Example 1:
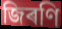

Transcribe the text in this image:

জিৰণি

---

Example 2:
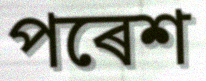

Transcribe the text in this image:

পৰেশ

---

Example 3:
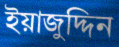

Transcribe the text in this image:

ইয়াজুদ্দিন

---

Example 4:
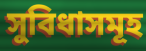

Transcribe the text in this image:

সুবিধাসমূহ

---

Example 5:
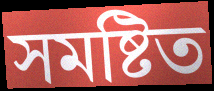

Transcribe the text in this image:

সমষ্টিত